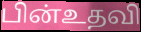
பின்உதவி